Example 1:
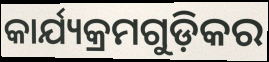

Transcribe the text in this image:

କାର୍ଯ୍ୟକ୍ରମଗୁଡ଼ିକର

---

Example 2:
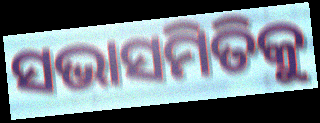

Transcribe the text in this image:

ସଭାସମିତିକୁ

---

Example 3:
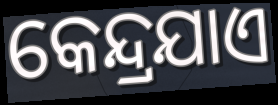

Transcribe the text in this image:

କେନ୍ଦ୍ରଯାଏ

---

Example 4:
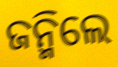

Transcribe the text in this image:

ଜନ୍ମିଲେ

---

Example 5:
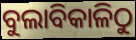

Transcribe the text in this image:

ବୁଲାବିକାଳିଠୁ